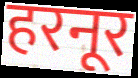
हरनूर